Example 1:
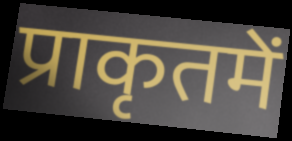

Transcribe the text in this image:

प्राकृतमें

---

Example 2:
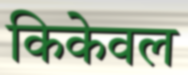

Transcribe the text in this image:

किकेवल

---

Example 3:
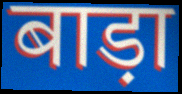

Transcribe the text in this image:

बाड़ा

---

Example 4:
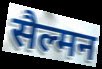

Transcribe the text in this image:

सैल्मन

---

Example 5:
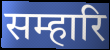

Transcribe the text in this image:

सम्हारि